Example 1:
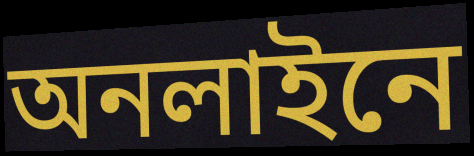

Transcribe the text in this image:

অনলাইনে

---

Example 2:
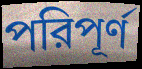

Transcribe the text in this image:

পরিপূর্ণ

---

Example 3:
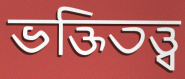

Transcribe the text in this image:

ভক্তিতত্ত্ব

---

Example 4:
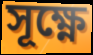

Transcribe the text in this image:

সূক্ষ্ণে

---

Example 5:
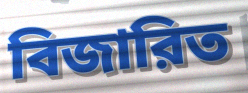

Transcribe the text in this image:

বিজারিত